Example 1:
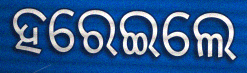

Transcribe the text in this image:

ହରେଇଲେ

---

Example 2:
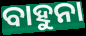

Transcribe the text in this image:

ବାହୁନା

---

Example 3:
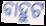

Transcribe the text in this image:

ବାହୁଟ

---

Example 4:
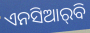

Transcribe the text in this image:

ଏନସିଆର୍‌ବି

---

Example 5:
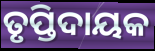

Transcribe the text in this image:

ତୃପ୍ତିଦାୟକ